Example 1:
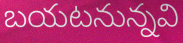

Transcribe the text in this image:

బయటనున్నవి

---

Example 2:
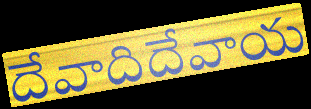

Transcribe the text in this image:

దేవాదిదేవాయ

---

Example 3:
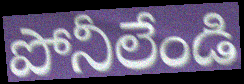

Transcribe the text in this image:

పోనీలేండి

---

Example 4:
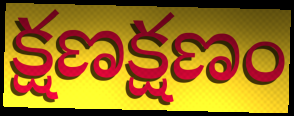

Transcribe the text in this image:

క్షణక్షణం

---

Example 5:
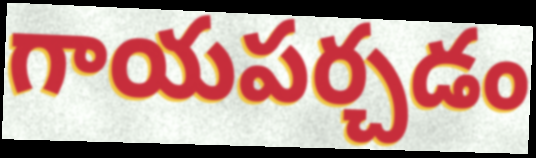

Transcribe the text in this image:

గాయపర్చడం